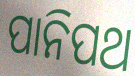
ପାନିପଥ